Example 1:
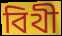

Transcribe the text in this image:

বিথী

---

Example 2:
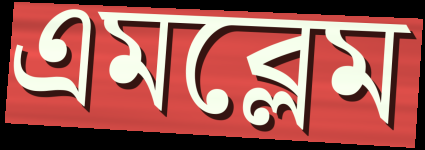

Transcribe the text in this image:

এমব্লেম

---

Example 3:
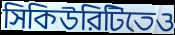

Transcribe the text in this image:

সিকিউরিটিতেও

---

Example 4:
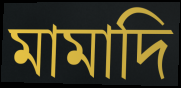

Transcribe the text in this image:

মামাদি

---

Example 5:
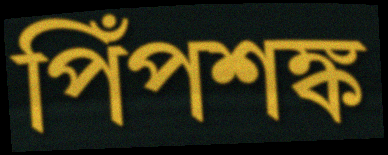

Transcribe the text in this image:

পিঁপশঙ্ক